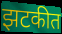
झटकीत